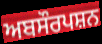
ਅਬਸੌਰਪਸ਼ਨ